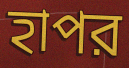
হাপর